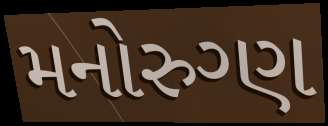
મનોરુગ્ણ